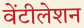
वेंटीलेशन